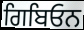
ਗਿਬਿਓਨ